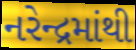
નરેન્દ્રમાંથી